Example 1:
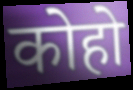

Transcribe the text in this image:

कोहो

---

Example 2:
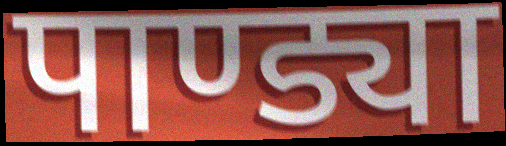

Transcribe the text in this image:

पाण्ड्या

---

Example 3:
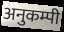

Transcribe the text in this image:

अनुकम्पी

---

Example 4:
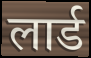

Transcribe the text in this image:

लार्ड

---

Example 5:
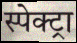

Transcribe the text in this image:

स्पेक्ट्रा